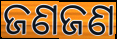
ଜଣଜଣ